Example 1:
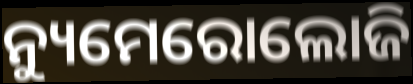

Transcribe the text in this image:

ନ୍ୟୁମେରୋଲୋଜି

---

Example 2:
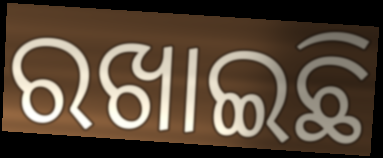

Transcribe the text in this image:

ରଖାଇଛି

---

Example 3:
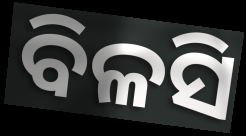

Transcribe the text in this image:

ବିଳସି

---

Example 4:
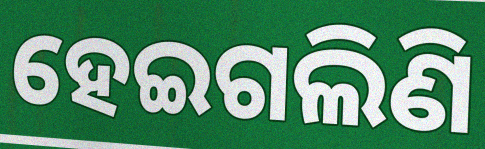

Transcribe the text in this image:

ହେଇଗଲିଣି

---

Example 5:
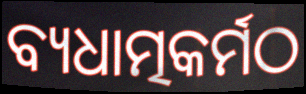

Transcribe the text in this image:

ବ୍ୟଧାତ୍ମକର୍ମଠ